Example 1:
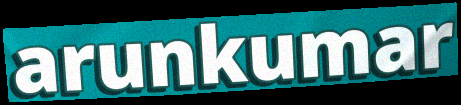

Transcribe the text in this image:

arunkumar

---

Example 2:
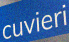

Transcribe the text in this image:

cuvieri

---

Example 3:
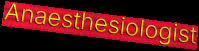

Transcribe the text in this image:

Anaesthesiologist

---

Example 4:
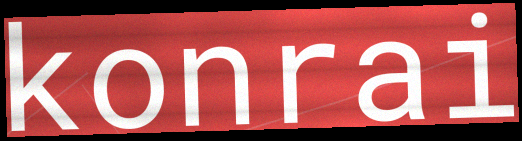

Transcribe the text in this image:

konrai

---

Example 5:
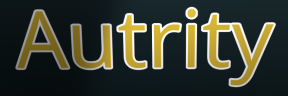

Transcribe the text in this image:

Autrity